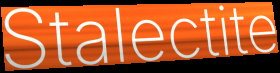
Stalectite